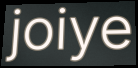
joiye